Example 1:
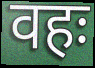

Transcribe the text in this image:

वहः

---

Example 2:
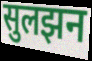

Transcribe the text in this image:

सुलझन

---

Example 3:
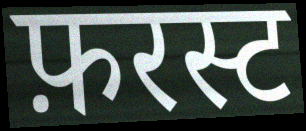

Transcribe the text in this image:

फ़रस्ट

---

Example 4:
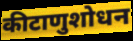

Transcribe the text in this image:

कीटाणुशोधन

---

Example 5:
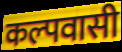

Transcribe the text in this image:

कल्पवासी